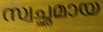
സ്വച്ഛമായ